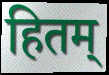
हितम्